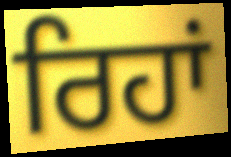
ਰਿਹਾਂ